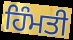
ਹਿੰਮਤੀ